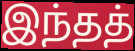
இந்தத்